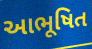
આભૂષિત